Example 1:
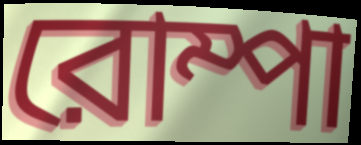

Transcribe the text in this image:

রোম্পা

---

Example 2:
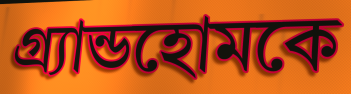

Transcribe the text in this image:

গ্র্যান্ডহোমকে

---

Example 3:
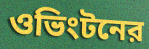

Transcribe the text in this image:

ওভিংটনের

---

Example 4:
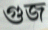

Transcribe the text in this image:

গুজ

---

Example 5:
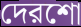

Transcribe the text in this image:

দেরশো